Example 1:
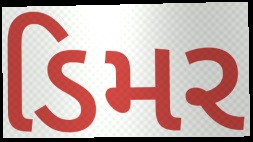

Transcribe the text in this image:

ડિમર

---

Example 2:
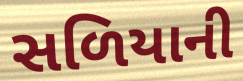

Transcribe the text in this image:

સળિયાની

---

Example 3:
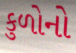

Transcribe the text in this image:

કુળોનો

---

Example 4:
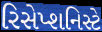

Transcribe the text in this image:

રિસેપ્શનિસ્ટે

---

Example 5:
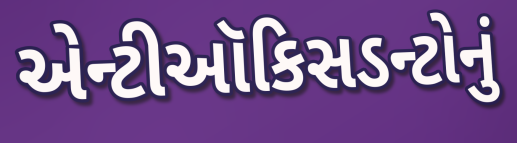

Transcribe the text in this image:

એન્ટીઑકિસડન્ટોનું